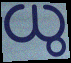
ധു